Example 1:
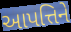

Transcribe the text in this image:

આપત્તિને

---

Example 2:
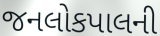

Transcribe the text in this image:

જનલોકપાલની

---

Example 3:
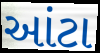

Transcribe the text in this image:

આંટા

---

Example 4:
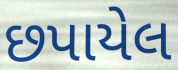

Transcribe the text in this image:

છપાયેલ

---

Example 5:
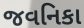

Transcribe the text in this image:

જવનિકા